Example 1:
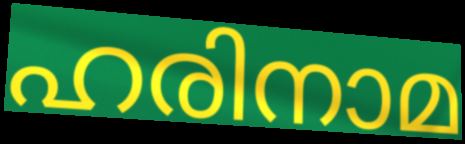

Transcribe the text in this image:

ഹരിനാമ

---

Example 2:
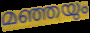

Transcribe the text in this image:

മഞ്ഞയും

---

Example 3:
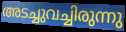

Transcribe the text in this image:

അടച്ചുവച്ചിരുന്നു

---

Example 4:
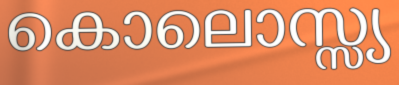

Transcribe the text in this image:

കൊലൊസ്സ്യ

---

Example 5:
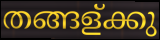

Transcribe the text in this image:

തങ്ങള്ക്കു